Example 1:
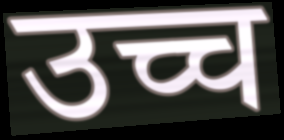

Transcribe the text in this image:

उच्‍च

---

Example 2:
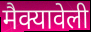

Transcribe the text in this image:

मैक्यावेली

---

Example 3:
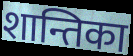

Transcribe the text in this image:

शान्तिका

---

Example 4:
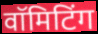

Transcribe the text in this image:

वॉमिटिंग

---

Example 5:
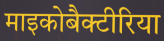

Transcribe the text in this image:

माइकोबैक्टीरिया